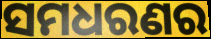
ସମଧରଣର